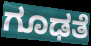
ಗೂಢತೆ